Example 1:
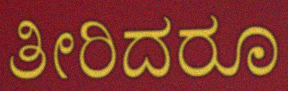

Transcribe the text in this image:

ತೀರಿದರೂ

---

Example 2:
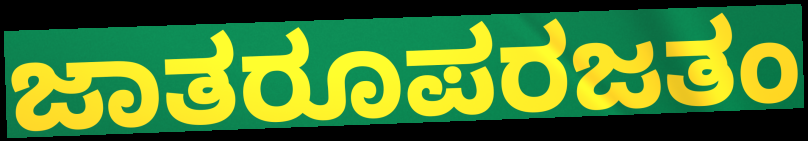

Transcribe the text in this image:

ಜಾತರೂಪರಜತಂ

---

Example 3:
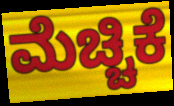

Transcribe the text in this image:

ಮೆಚ್ಚಿಕೆ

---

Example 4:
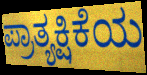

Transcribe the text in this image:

ಪ್ರಾತ್ಯಕ್ಷಿಕೆಯ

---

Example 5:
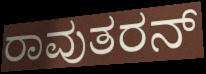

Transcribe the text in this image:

ರಾವುತರನ್